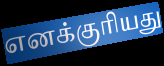
எனக்குரியது